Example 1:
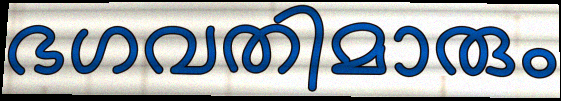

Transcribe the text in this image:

ഭഗവതിമാരും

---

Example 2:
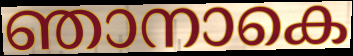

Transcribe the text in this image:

ഞാനാകെ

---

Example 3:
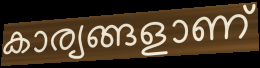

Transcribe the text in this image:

കാര്യങ്ങളാണ്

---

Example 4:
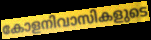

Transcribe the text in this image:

കോളനിവാസികളുടെ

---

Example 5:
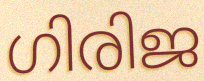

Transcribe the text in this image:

ഗിരിജ